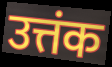
उत्तंक